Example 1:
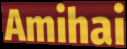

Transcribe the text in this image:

Amihai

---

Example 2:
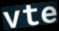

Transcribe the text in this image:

vte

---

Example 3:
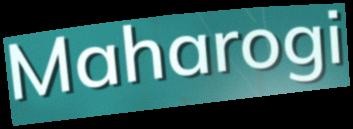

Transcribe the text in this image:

Maharogi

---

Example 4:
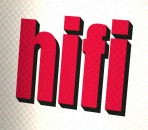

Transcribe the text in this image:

hifi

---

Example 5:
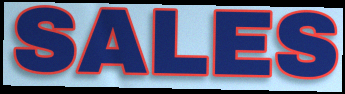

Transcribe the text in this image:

SALES